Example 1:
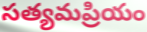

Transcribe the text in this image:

సత్యమప్రియం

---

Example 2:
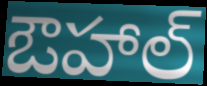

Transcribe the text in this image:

ఔహాల్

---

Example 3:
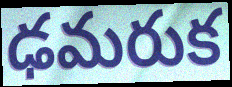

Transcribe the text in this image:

ఢమరుక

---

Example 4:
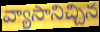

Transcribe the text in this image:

వ్యాసానిచ్చిన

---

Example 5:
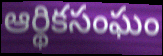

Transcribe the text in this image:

ఆర్థికసంఘం